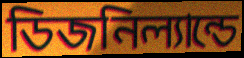
ডিজনিল্যান্ডে